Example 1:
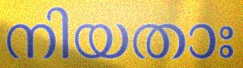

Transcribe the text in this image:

നിയതാഃ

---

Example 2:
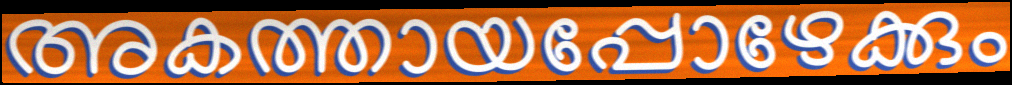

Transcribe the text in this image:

അകത്തായപ്പോഴേക്കും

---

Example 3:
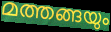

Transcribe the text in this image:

മത്തങ്ങയും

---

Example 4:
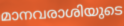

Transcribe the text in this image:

മാനവരാശിയുടെ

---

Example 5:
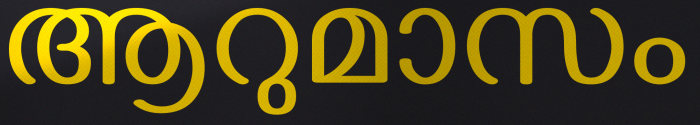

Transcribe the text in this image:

ആറുമാസം